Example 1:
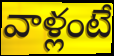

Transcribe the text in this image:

వాళ్లంటే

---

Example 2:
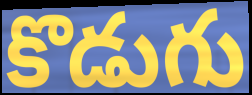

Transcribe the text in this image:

కొడుగు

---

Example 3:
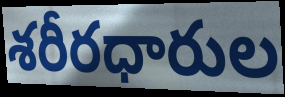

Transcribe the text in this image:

శరీరధారుల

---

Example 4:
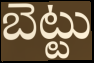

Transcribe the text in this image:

బెట్టు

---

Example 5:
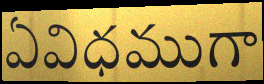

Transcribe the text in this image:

ఏవిధముగా